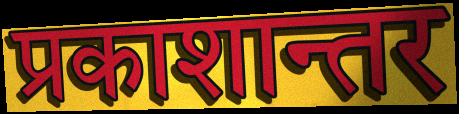
प्रकाशान्तर